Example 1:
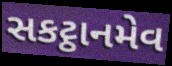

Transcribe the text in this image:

સકટ્ઠાનમેવ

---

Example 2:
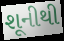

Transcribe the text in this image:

શૂનીથી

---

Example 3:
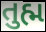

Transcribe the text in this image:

તુહ્મ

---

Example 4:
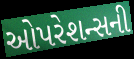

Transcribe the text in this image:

ઓપરેશન્સની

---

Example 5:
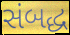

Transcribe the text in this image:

સંબદ્ધ